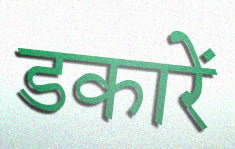
डकारें